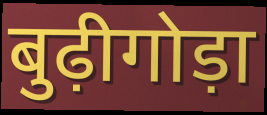
बुढ़ीगोड़ा